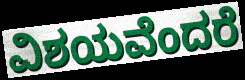
ವಿಶಯವೆಂದರೆ